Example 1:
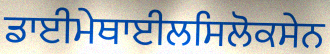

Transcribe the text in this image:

ਡਾਈਮੇਥਾਈਲਸਿਲੋਕਸੇਨ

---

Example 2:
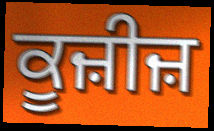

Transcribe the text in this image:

ਕੂਜ਼ੀਜ਼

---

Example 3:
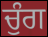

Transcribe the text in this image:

ਚੁੰਗ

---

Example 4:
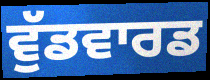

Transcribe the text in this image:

ਵੁੱਡਵਾਰਡ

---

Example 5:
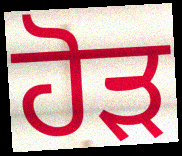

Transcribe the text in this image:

ਹੋੜ